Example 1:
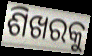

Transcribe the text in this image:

ଶିଖରକୁ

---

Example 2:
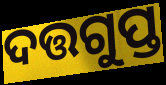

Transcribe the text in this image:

ଦତ୍ତଗୁପ୍ତ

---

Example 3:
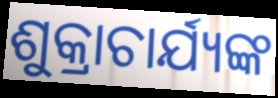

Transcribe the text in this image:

ଶୁକ୍ରାଚାର୍ଯ୍ୟଙ୍କ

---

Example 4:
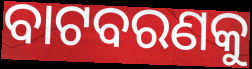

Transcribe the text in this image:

ବାଟବରଣକୁ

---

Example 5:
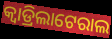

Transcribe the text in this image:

କ୍ୱାଡ୍ରିଲାଟେରାଲ